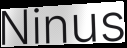
Ninus